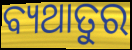
ବ୍ୟଥାତୁର